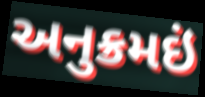
અનુક્રમઇં